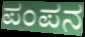
ಪಂಪನ